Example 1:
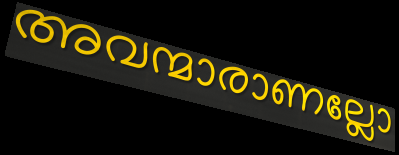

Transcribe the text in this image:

അവന്മാരാണല്ലോ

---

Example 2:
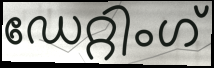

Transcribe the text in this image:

ഡേറ്റിംഗ്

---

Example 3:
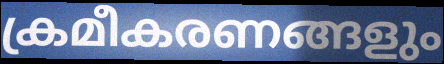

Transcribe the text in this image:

ക്രമീകരണങ്ങളും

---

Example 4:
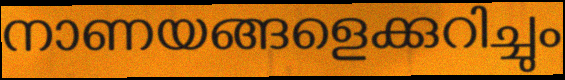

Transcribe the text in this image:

നാണയങ്ങളെക്കുറിച്ചും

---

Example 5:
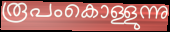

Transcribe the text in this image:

രൂപംകൊള്ളുന്നു